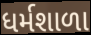
ધર્મશાળા